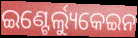
ଇଣ୍ଟେର୍ଲ୍ୟୁକେଇନ